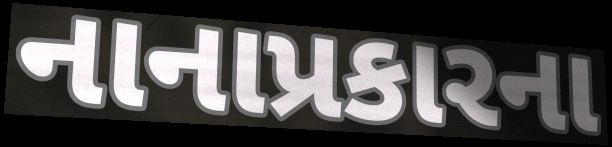
નાનાપ્રકારના